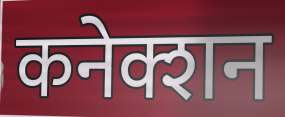
कनेक्‍शन